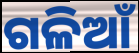
ଗଳିଆଁ